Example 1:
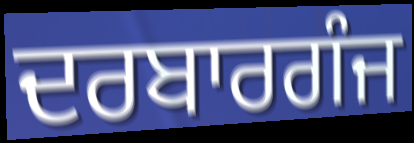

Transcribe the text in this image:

ਦਰਬਾਰਗੰਜ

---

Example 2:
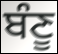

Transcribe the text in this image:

ਬੰਣੂ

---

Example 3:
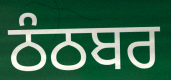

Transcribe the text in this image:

ਠੰਠਬਰ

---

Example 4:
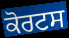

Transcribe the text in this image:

ਕੋਰਟਸ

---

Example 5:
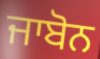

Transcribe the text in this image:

ਜਾਬੋਨ